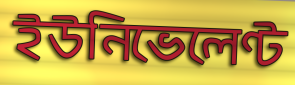
ইউনিভেলেণ্ট